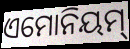
ଏମୋନିୟମ୍